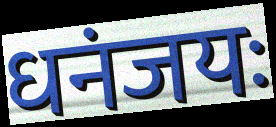
धनंजयः